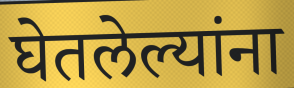
घेतलेल्यांना